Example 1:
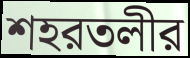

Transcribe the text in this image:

শহরতলীর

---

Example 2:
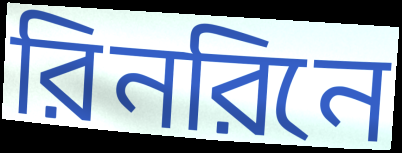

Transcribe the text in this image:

রিনরিনে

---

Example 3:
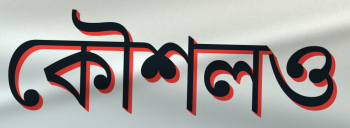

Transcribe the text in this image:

কৌশলও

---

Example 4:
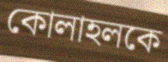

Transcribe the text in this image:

কোলাহলকে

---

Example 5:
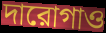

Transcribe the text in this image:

দারোগাও